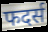
फदर्स